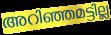
അറിഞ്ഞമട്ടില്ല